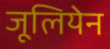
जूलियेन